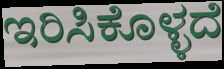
ಇರಿಸಿಕೊಳ್ಳದೆ